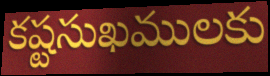
కష్టసుఖములకు